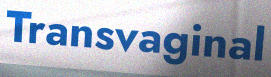
Transvaginal